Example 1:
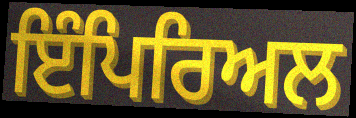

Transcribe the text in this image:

ਇੰਪਿਰਿਅਲ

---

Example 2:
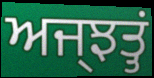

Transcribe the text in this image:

ਅਜ੍ਝਤ੍ਤਂ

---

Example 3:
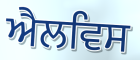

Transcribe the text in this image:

ਐਲਵਿਸ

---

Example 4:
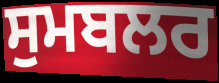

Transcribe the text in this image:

ਸੁਮਬਲਰ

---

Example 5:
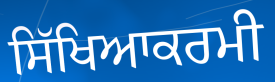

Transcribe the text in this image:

ਸਿੱਖਿਆਕਰਮੀ